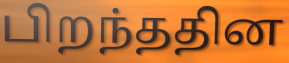
பிறந்ததின